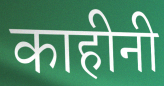
काहीनी